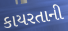
કાયરતાની